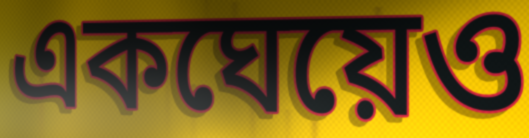
একঘেয়েও